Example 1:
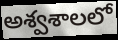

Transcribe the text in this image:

అశ్వశాలలో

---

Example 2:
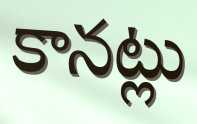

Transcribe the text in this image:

కానట్లు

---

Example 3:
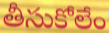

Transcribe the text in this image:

తీసుకోలేం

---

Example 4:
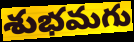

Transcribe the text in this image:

శుభమగు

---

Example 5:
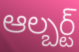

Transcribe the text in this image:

ఆల్బర్ట్